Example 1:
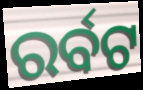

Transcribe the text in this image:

ରର୍ବଟ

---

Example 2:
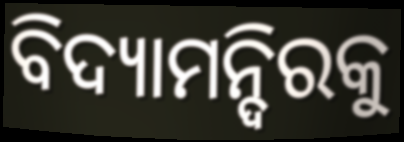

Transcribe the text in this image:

ବିଦ୍ୟାମନ୍ଦିରକୁ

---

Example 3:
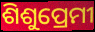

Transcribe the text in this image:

ଶିଶୁପ୍ରେମୀ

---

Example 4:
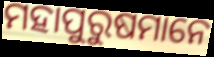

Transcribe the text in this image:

ମହାପୁରୁଷମାନେ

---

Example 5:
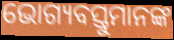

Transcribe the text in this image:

ଭୋଗ୍ୟବସ୍ତୁମାନଙ୍କ